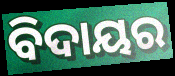
ବିଦାୟର